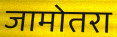
जामोतरा